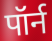
पॉर्न